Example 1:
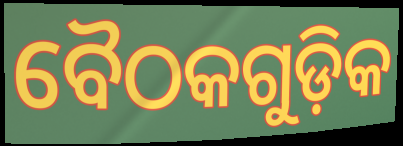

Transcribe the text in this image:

ବୈଠକଗୁଡ଼ିକ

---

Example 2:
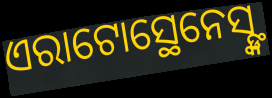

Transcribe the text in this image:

ଏରାଟୋସ୍ଥେନେସ୍ଙ୍କ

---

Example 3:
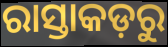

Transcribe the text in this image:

ରାସ୍ତାକଡ଼ରୁ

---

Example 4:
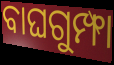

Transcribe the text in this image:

ବାଘଗୁମ୍ଫା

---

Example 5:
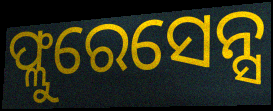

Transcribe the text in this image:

ଫ୍ଲୁରେସେନ୍ସ